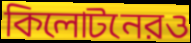
কিলোটনেরও